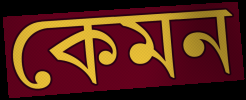
কেমন